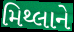
મિથ્લાને